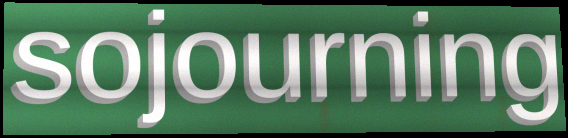
sojourning